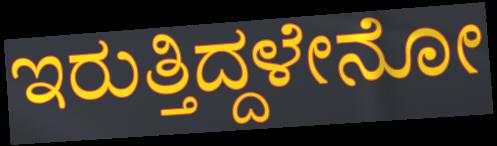
ಇರುತ್ತಿದ್ದಳೇನೋ